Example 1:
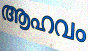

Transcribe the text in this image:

ആഹവം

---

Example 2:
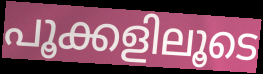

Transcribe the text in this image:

പൂക്കളിലൂടെ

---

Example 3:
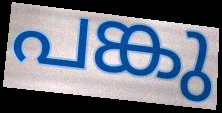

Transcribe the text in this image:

പങ്കു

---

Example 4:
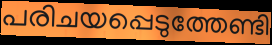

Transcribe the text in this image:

പരിചയപ്പെടുത്തേണ്ടി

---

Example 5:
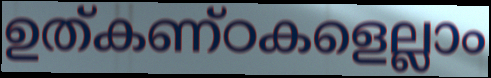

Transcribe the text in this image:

ഉത്കണ്ഠകളെല്ലാം